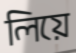
লিয়ে